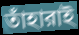
তাঁহারাই